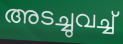
അടച്ചുവച്ച്